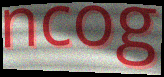
ncog